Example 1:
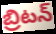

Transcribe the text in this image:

బ్రిటన్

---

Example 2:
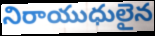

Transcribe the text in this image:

నిరాయుధులైన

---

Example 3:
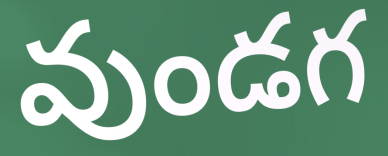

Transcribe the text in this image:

వుండగ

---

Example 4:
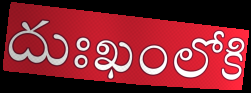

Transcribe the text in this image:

దుఃఖంలోకి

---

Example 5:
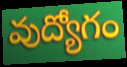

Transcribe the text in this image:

వుద్యోగం